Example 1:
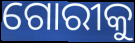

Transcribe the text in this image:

ଗୋରୀକୁ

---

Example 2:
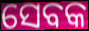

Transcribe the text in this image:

ସେବକ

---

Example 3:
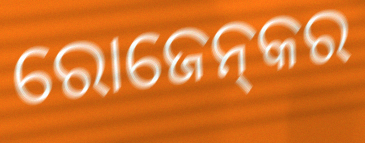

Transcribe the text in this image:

ରୋଜେନ୍‌କର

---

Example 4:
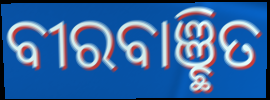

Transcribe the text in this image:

ବୀରବାଞ୍ଛିତ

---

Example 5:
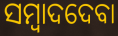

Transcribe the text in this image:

ସମ୍ବାଦଦେବା